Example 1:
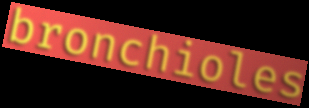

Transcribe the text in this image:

bronchioles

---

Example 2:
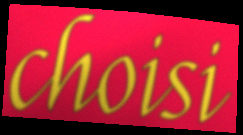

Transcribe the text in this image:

choisi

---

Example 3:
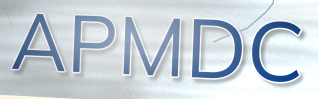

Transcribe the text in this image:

APMDC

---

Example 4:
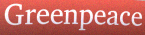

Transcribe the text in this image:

Greenpeace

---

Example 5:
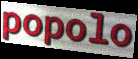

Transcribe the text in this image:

popolo